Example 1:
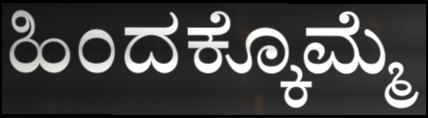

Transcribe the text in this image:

ಹಿಂದಕ್ಕೊಮ್ಮೆ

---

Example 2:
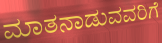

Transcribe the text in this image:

ಮಾತನಾಡುವವರಿಗೆ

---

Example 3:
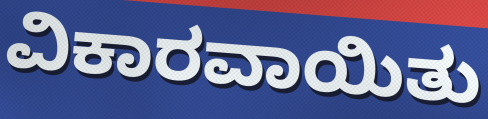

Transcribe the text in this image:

ವಿಕಾರವಾಯಿತು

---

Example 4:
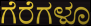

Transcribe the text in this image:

ಗೆರೆಗಳೂ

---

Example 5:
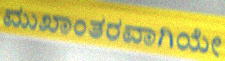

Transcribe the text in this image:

ಮುಖಾಂತರವಾಗಿಯೇ